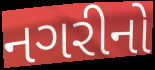
નગરીનો